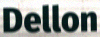
Dellon